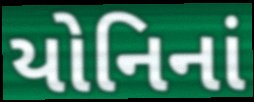
યોનિનાં